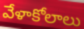
వేళాకోలాలు